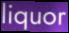
liquor